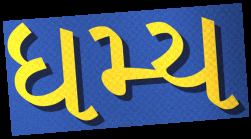
ધમ્ય